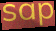
sap